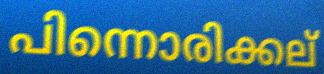
പിന്നൊരിക്കല്